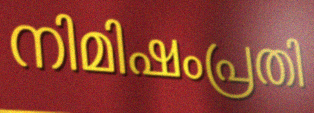
നിമിഷംപ്രതി